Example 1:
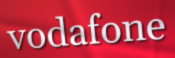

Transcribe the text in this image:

vodafone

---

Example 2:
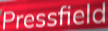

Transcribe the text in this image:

Pressfield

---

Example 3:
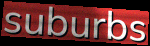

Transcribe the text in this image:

suburbs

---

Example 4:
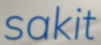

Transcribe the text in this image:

sakit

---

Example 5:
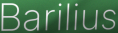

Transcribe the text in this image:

Barilius